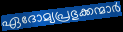
ഏദോമ്യപ്രഭുക്കന്മാർ